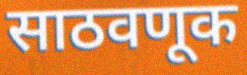
साठवणूक